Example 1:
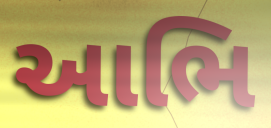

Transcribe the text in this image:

આભિ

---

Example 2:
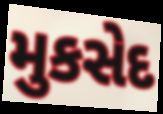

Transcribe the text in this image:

મુકસેદ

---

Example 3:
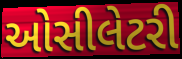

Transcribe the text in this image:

ઓસીલેટરી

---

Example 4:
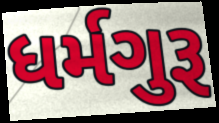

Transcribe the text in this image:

ધર્મગુરૂ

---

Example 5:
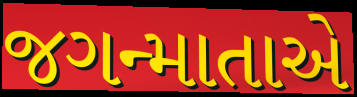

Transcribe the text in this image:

જગન્માતાએ